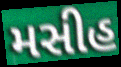
મસીહ